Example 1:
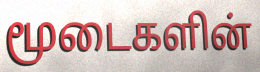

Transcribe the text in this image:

மூடைகளின்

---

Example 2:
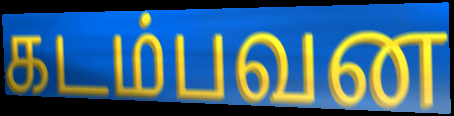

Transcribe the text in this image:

கடம்பவன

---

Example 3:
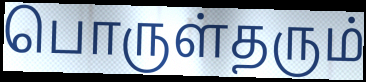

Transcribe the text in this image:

பொருள்தரும்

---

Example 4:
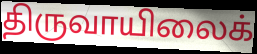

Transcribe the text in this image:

திருவாயிலைக்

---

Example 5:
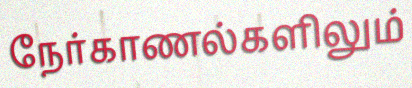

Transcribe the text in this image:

நேர்காணல்களிலும்